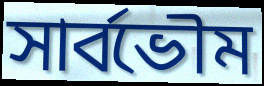
সার্বভৌম